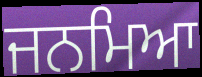
ਜਨਮਿਆ